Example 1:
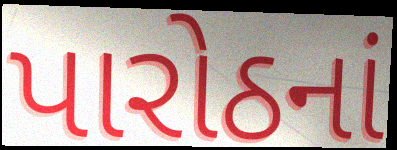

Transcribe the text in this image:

પારોઠનાં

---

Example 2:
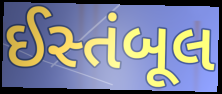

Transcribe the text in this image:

ઈસ્તંબૂલ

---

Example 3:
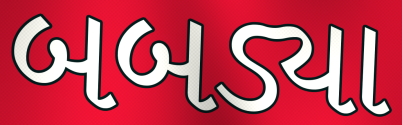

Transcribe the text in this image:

બબડ્યા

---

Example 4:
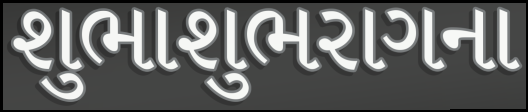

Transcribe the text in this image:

શુભાશુભરાગના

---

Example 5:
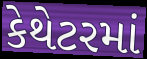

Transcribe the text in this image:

કેથેટરમાં